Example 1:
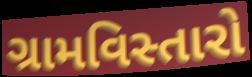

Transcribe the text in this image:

ગ્રામવિસ્તારો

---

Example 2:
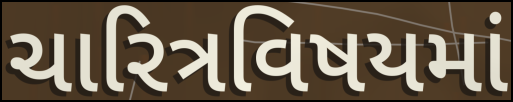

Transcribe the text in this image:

ચારિત્રવિષયમાં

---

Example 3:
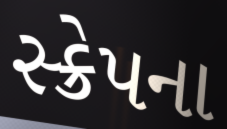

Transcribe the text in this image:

સ્ક્રેપના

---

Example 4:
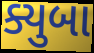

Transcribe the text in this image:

ક્યુબા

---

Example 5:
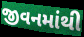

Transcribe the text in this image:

જીવનમાંથી